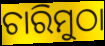
ଚାରିମୁଠା